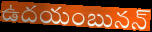
ఉదయంబునన్